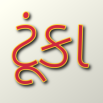
ટૂંકા